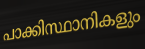
പാക്കിസ്ഥാനികളും